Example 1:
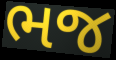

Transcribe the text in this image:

ભજ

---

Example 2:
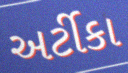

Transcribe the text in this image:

અર્ટીકા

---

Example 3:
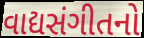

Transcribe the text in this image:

વાદ્યસંગીતનો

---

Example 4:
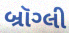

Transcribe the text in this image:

બ્રૉગ્લી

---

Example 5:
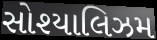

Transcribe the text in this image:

સોશ્યાલિઝમ